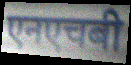
एनएचबी